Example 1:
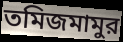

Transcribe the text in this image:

তমিজমামুর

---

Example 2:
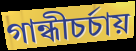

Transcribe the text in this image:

গান্ধীচর্চায়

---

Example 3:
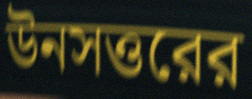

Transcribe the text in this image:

উনসত্তরের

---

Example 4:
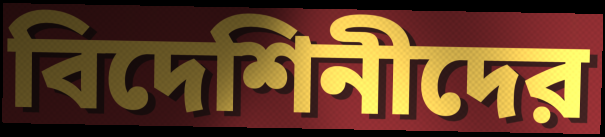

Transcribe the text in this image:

বিদেশিনীদের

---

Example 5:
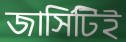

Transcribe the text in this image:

জার্সিটিই